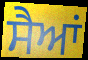
ਸੈਆਂ